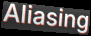
Aliasing